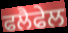
ਫਲੈਫੇਲ